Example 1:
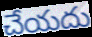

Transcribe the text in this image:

చేయదు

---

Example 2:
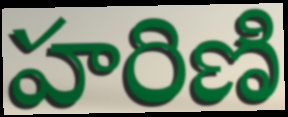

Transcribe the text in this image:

హరిణి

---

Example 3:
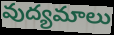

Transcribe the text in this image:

వుద్యమాలు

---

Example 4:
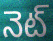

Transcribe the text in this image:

నెట్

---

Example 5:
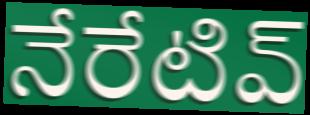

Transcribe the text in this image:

నేరేటివ్